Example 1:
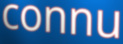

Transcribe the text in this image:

connu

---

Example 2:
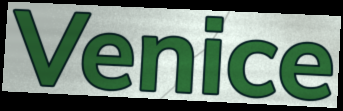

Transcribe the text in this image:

Venice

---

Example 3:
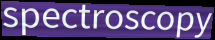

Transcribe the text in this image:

spectroscopy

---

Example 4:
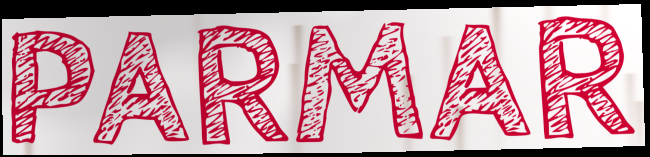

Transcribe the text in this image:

PARMAR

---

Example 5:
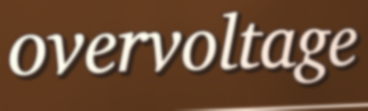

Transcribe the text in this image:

overvoltage